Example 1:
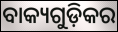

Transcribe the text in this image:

ବାକ୍ୟଗୁଡ଼ିକର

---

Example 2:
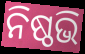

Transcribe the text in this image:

ନିଷ୍ଠଭି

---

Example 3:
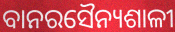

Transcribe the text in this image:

ବାନରସୈନ୍ୟଶାଳୀ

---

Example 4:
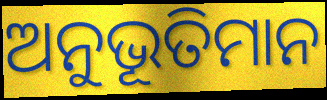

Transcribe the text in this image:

ଅନୁଭୂତିମାନ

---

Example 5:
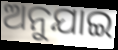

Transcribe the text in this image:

ଅନୁଯାଇ